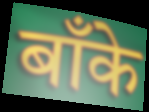
बाँके